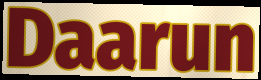
Daarun